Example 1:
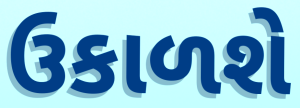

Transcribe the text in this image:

ઉકાળશે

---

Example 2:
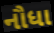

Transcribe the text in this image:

નૌધા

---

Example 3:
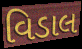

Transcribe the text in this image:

વિડાલ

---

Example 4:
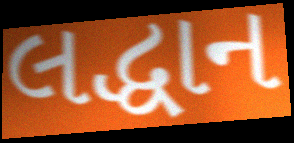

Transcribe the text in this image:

લદ્ધાન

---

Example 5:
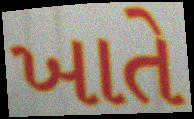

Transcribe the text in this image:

ખાતે